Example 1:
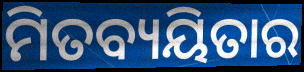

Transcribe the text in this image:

ମିତବ୍ୟୟିତାର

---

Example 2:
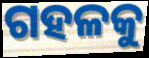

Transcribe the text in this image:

ଗହଳକୁ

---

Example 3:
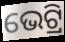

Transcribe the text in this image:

ଭେଟ୍ରି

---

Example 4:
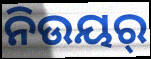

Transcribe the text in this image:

ନିଉୟର୍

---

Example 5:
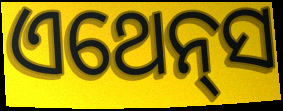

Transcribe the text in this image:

ଏଥେନ୍‌ସ